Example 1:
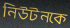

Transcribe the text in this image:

নিউটনকে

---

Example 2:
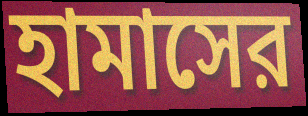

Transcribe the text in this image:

হামাসের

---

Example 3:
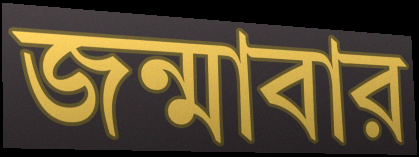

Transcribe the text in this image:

জন্মাবার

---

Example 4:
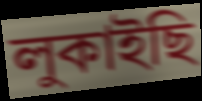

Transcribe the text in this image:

লুকাইছি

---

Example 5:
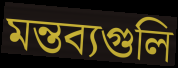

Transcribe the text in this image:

মন্তব্যগুলি